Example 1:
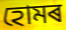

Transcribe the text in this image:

হোমৰ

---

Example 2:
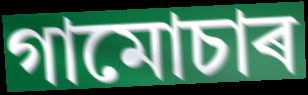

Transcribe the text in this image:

গামোচাৰ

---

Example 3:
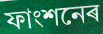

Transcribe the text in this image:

ফাংশনেৰ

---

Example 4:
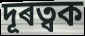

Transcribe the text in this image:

দূৰত্বক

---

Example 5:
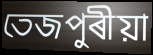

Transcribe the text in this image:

তেজপুৰীয়া